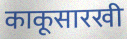
काकूसारखी